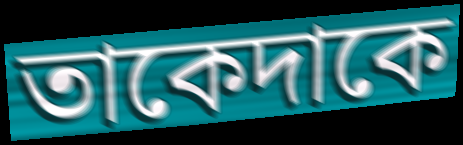
তাকেদাকে